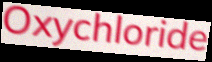
Oxychloride